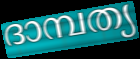
ദാമ്പത്യ